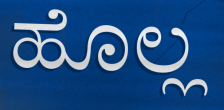
ಹೊಲ್ಲ